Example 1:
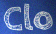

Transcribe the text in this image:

Clo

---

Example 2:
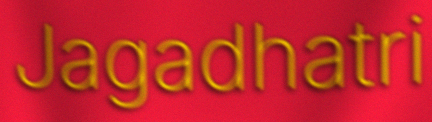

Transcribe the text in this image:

Jagadhatri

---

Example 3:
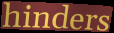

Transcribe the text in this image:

hinders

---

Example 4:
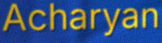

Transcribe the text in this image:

Acharyan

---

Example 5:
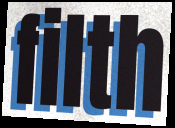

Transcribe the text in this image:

filth